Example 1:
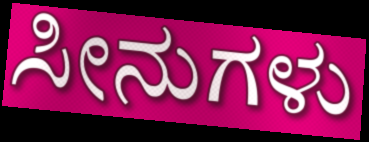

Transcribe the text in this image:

ಸೀನುಗಳು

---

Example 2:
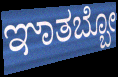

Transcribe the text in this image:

ಞಾತಬ್ಬೋ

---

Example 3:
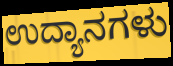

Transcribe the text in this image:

ಉದ್ಯಾನಗಳು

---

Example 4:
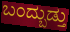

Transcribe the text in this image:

ಬಂದ್ಬುಡ್ತು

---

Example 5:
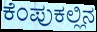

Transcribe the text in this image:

ಕೆಂಪುಕಲ್ಲಿನ